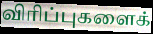
விரிப்புகளைக்